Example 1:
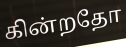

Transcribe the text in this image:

கின்றதோ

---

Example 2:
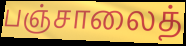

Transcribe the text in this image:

பஞ்சாலைத்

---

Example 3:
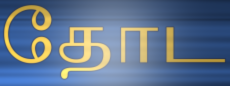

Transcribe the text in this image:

தோட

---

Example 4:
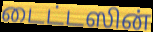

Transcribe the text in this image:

டைட்டஸின்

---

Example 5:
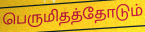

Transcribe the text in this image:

பெருமிதத்தோடும்